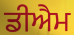
ਡੀਐਮ